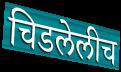
चिडलेलीच